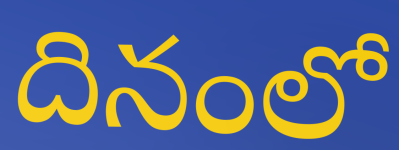
దినంలో